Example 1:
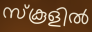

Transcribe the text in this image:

സ്കൂളിൽ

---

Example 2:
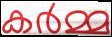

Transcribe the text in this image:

കർമ്മ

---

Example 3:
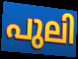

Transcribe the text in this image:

പുലി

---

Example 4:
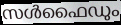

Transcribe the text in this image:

സൾഫൈഡും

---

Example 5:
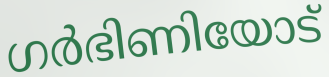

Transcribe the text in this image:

ഗർഭിണിയോട്